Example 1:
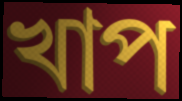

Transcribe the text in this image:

খাপ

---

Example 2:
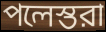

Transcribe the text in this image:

পলেস্তরা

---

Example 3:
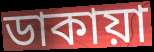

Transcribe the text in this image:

ডাকায়া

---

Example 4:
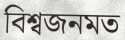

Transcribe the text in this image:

বিশ্বজনমত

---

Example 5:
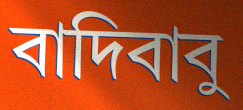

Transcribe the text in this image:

বাদিবাবু